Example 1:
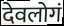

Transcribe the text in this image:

देवलोगं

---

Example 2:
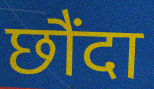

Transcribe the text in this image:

छौंदा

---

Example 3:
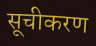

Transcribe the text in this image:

सूचीकरण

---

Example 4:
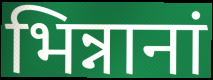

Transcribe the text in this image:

भिन्नानां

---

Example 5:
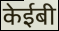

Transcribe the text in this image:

केईबी